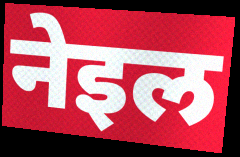
नेइल